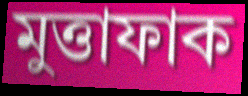
মুত্তাফাক